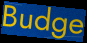
Budge